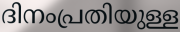
ദിനംപ്രതിയുള്ള